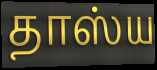
தாஸ்ய